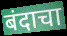
बंदाचा